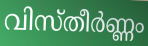
വിസ്തീർണ്ണം